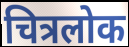
चित्रलोक